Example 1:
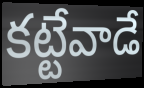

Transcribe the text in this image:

కట్టేవాడే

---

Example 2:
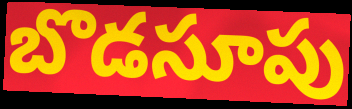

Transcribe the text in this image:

బొడసూపు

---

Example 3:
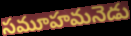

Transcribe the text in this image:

సమూహమనెడు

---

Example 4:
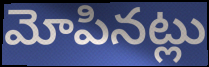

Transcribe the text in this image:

మోపినట్లు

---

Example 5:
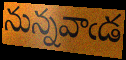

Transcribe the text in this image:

నున్నవాఁడ